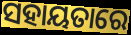
ସହାୟତାରେ